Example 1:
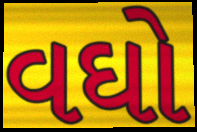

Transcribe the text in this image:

વઘો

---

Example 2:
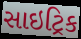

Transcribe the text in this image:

સાઇટ્રિક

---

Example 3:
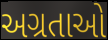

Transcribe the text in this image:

અગ્રતાઓ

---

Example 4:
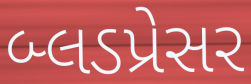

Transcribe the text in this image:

બ્લડપ્રેસર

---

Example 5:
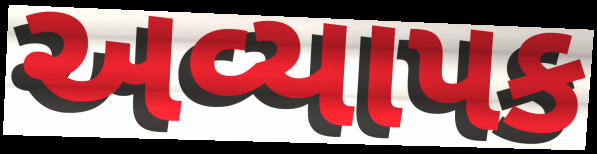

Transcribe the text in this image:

અવ્યાપક